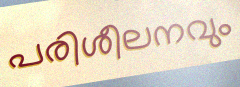
പരിശീലനവും